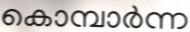
കൊമ്പാർന്ന